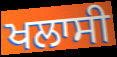
ਖਲਾਸੀ